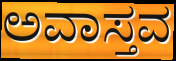
ಅವಾಸ್ತವ